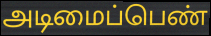
அடிமைப்பெண்